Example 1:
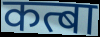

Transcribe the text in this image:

कत्बा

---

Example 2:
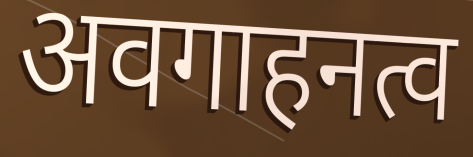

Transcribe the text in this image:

अवगाहनत्व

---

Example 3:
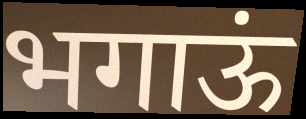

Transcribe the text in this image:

भगाऊं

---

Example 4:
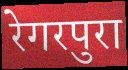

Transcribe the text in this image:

रेगरपुरा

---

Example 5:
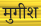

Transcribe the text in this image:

मुगीश